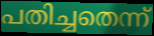
പതിച്ചതെന്ന്